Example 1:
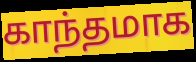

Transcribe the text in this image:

காந்தமாக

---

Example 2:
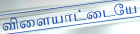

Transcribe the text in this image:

விளையாட்டையே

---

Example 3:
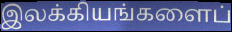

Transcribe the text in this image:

இலக்கியங்களைப்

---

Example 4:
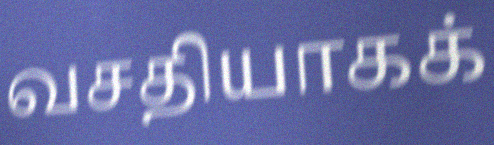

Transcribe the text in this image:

வசதியாகக்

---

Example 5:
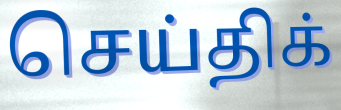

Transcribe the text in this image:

செய்திக்